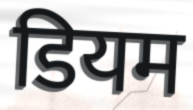
डियम